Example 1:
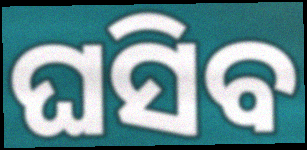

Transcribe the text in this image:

ଘସିବ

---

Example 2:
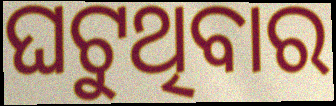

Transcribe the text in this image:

ଘଟୁଥିବାର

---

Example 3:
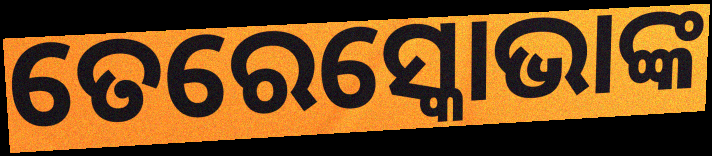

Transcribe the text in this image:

ତେରେସ୍କୋଭାଙ୍କ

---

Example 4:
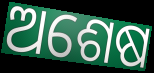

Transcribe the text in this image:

ଅଶେଷ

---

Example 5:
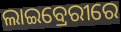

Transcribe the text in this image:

ଲାଇବ୍ରେରୀରେ